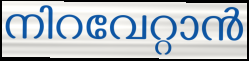
നിറവേറ്റാൻ